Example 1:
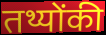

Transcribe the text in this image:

तथ्योंकी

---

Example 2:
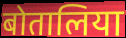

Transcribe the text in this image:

बोतालिया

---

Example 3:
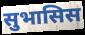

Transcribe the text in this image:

सुभासिस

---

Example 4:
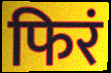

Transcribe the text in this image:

फिरं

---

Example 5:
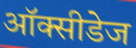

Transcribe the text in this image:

ऑक्सीडेज